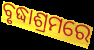
ବୃଦ୍ଧାଶ୍ରମରେ